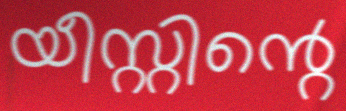
യീസ്റ്റിന്റെ